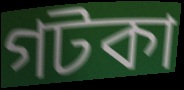
গটকা